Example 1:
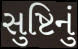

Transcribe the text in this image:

સુષ્ટિનું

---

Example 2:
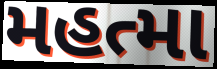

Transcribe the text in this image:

મહત્મા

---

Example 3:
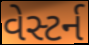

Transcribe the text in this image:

વેસ્ટર્ન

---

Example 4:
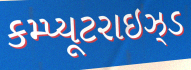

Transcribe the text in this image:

કમ્પ્યૂટરાઇઝ્ડ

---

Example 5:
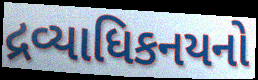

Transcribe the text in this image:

દ્રવ્યાધિકનયનો